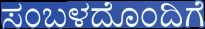
ಸಂಬಳದೊಂದಿಗೆ